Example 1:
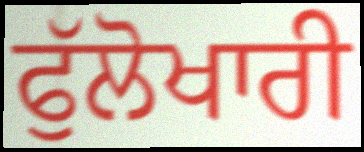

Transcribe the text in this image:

ਫੁੱਲੋਖਾਰੀ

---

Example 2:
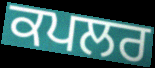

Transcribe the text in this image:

ਕਪਲਰ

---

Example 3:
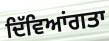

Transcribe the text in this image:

ਦਿੱਵਿਆਂਗਤਾ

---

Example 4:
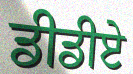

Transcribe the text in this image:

ਡੀਡੀਏ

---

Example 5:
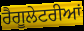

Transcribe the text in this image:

ਰੈਗੂਲੇਟਰੀਆਂ